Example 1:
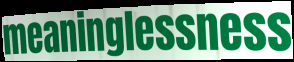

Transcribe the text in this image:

meaninglessness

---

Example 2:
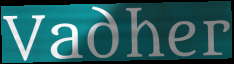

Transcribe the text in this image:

Vadher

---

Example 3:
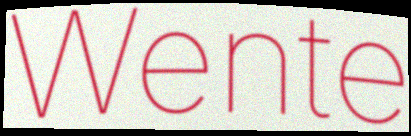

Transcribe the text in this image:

Wente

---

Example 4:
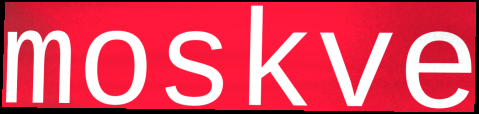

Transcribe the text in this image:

moskve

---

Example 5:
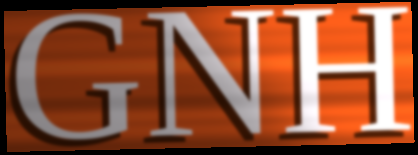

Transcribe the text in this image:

GNH